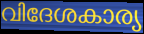
വിദേശകാര്യ